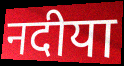
नदीया